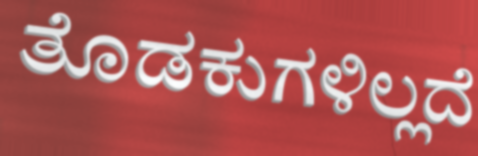
ತೊಡಕುಗಳಿಲ್ಲದೆ